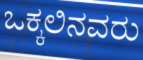
ಒಕ್ಕಲಿನವರು